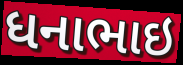
ધનાભાઇ